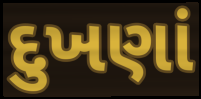
દુખણાં